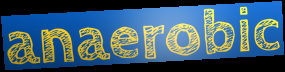
anaerobic